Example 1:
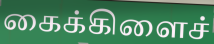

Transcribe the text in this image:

கைக்கிளைச்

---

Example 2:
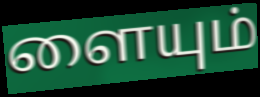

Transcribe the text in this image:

ளையும்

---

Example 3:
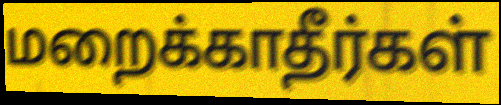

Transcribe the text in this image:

மறைக்காதீர்கள்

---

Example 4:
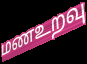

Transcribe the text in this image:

மணஉறவு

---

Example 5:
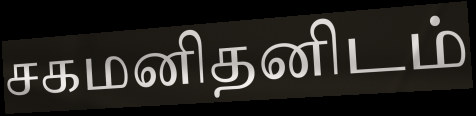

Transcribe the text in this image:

சகமனிதனிடம்